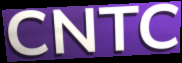
CNTC